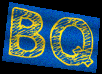
BQ